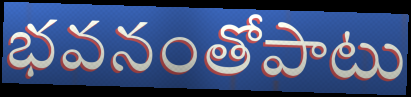
భవనంతోపాటు